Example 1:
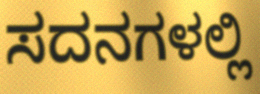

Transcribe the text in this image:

ಸದನಗಳಲ್ಲಿ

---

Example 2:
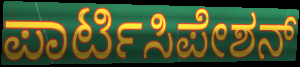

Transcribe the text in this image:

ಪಾರ್ಟಿಸಿಪೇಶನ್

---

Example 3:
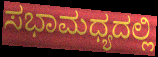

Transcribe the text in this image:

ಸಭಾಮಧ್ಯದಲ್ಲಿ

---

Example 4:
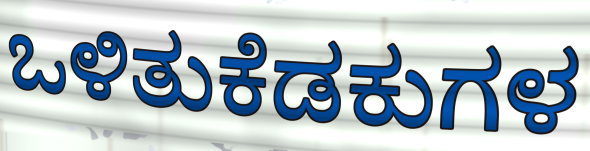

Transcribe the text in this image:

ಒಳಿತುಕೆಡಕುಗಳ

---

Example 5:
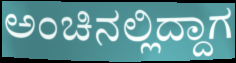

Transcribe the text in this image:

ಅಂಚಿನಲ್ಲಿದ್ದಾಗ